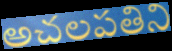
అచలపతిని